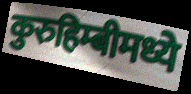
कुरुहिम्बीमध्ये